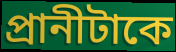
প্রানীটাকে